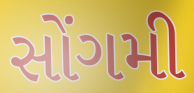
સોંગમી